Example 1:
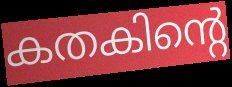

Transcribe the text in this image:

കതകിന്റെ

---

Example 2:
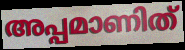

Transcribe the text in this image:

അപ്പമാണിത്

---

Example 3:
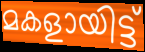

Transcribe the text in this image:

മകളായിട്ട്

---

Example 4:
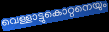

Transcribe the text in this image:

വെള്ളാട്ടുകൊറ്റനെയും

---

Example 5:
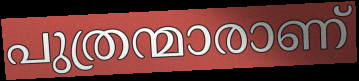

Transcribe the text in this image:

പുത്രന്മാരാണ്